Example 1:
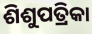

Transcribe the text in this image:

ଶିଶୁପତ୍ରିକା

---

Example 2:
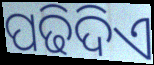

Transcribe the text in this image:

ପଢିଦିଏ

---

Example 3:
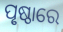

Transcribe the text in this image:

ପୃଷ୍ଠାରେ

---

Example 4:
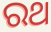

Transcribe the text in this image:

ରଥ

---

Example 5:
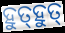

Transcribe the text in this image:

ହୁତ୍‌ହୁତ୍